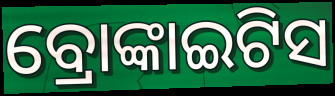
ବ୍ରୋଙ୍କାଇଟିସ